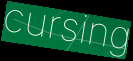
cursing